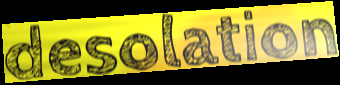
desolation